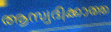
ആസ്വദിക്കാത്ത